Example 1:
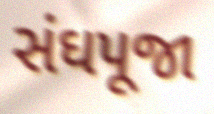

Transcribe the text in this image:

સંઘપૂજા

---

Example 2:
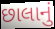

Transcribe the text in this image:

છાલાનું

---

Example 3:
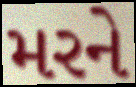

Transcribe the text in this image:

મરને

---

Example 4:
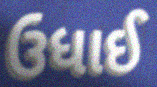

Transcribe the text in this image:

ઉધાઈ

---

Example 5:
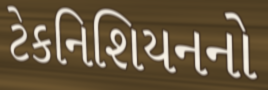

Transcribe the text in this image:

ટેકનિશિયનનો